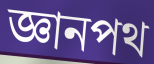
জ্ঞানপথ